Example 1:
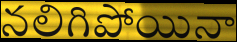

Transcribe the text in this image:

నలిగిపోయినా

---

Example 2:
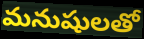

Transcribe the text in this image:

మనుషులతో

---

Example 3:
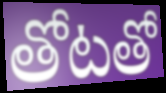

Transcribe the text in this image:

తోటతో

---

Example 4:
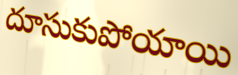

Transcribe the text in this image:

దూసుకుపోయాయి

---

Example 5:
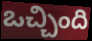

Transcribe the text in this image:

ఒచ్చింది